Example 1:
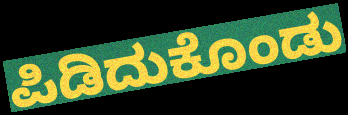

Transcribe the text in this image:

ಪಿಡಿದುಕೊಂಡು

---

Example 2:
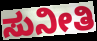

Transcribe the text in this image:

ಸುನೀತಿ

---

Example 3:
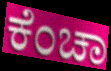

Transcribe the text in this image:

ಕೆಂಚಾ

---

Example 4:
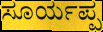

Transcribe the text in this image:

ಸೂರ್ಯಪ್ಪ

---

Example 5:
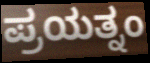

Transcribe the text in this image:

ಪ್ರಯತ್ನಂ